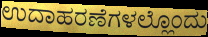
ಉದಾಹರಣೆಗಳಲ್ಲೊಂದು